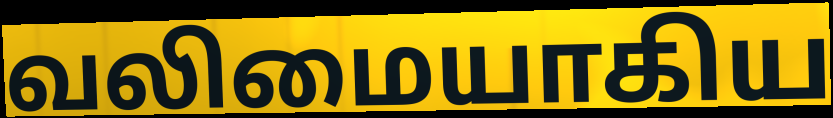
வலிமையாகிய